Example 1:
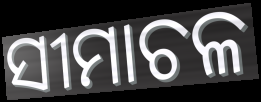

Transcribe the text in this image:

ସୀମାଚଳ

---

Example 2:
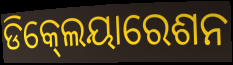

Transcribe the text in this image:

ଡିକ୍‍ଲେୟାରେଶନ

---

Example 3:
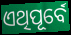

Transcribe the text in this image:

ଏଥିପୂର୍ବେ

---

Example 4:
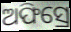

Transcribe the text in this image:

ଅଫିସ୍ରେ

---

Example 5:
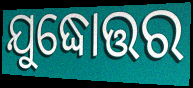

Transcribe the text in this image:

ଯୁଦ୍ଧୋତ୍ତର